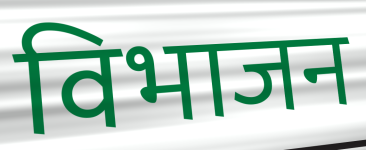
विभाजन